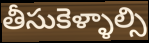
తీసుకెళ్ళాల్సి